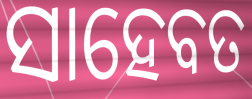
ସାହେବତ